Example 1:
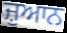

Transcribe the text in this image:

ਜ਼ੁਆਨ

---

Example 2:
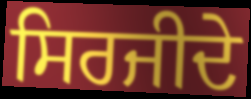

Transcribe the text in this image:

ਸਿਰਜੀਦੇ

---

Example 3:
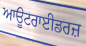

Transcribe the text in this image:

ਆਊਟਰਾਈਡਰਜ਼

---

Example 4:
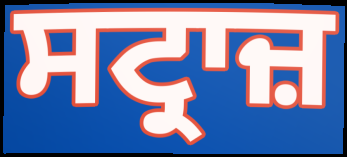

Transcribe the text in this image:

ਸਟ੍ਰਾਜ਼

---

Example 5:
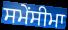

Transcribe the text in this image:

ਸਮੇਂਸੀਮਾ